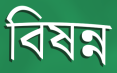
বিষন্ন